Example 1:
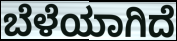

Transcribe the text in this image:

ಬೆಳೆಯಾಗಿದೆ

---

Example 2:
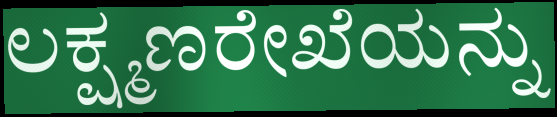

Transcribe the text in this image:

ಲಕ್ಷ್ಮಣರೇಖೆಯನ್ನು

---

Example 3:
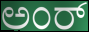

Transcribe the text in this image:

ಅಂರ್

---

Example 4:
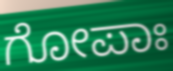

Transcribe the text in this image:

ಗೋಪಾಃ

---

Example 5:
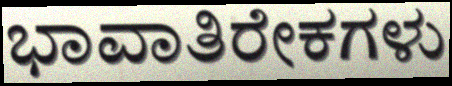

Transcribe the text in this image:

ಭಾವಾತಿರೇಕಗಳು